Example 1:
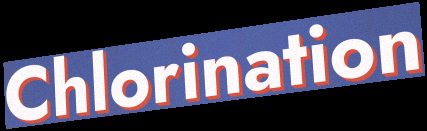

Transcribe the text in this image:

Chlorination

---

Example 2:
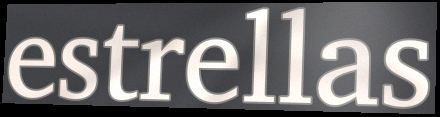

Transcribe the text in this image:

estrellas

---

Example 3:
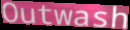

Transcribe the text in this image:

Outwash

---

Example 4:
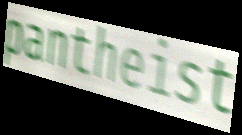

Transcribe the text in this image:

pantheist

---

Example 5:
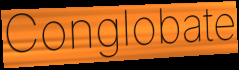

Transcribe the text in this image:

Conglobate